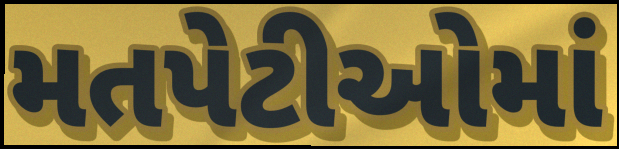
મતપેટીઓમાં